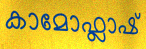
കാമോഫ്ലാഷ്